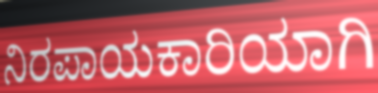
ನಿರಪಾಯಕಾರಿಯಾಗಿ